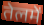
तेलमें